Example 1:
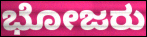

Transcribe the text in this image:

ಭೋಜರು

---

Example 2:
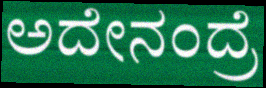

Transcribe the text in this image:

ಅದೇನಂದ್ರೆ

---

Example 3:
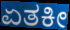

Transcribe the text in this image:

ಏತಕೀ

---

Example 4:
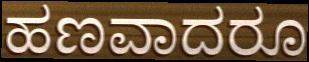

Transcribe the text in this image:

ಹಣವಾದರೂ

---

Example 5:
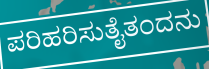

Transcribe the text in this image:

ಪರಿಹರಿಸುತೈತಂದನು